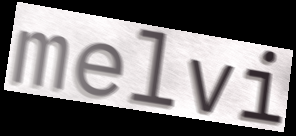
melvi